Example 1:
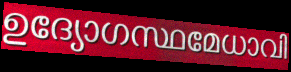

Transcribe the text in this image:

ഉദ്യോഗസ്ഥമേധാവി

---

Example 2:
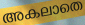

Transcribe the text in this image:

അകലാതെ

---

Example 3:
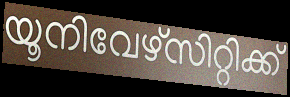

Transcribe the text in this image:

യൂനിവേഴ്സിറ്റിക്ക്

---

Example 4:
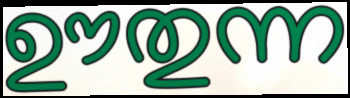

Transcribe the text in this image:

ഊതുന്ന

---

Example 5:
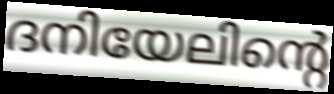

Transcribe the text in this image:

ദനിയേലിന്റെ